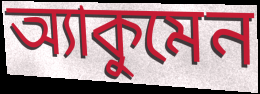
অ্যাকুমেন